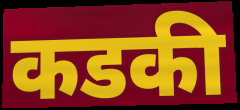
कडकी